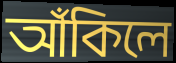
আঁকিলে